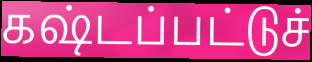
கஷ்டப்பட்டுச்